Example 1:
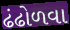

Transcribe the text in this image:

ઢંઢોળવા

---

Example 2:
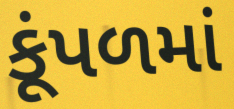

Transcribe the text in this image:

કૂંપળમાં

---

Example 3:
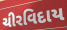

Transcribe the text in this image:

ચીરવિદાય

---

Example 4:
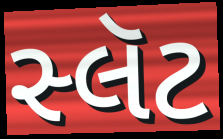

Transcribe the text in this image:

સ્લૅટ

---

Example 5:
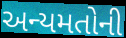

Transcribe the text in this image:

અન્યમતોની